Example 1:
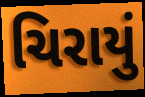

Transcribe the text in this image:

ચિરાયું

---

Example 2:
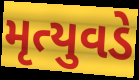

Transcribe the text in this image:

મૃત્યુવડે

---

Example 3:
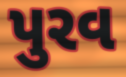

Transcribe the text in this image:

પુરવ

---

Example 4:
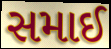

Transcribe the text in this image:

સમાઈ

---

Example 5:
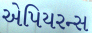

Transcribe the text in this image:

એપિયરન્સ